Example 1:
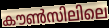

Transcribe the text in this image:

കൗൺസിലിലെ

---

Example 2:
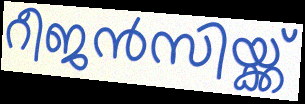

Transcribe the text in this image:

റീജൻസിയ്ക്ക്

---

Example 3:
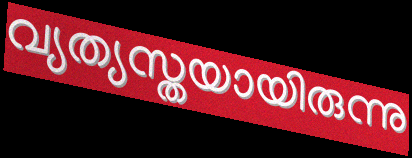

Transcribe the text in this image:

വ്യത്യസ്തയായിരുന്നു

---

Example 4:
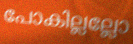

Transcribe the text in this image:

പോകില്ലല്ലോ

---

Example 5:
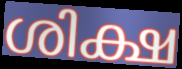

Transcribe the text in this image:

ശിക്ഷ